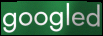
googled